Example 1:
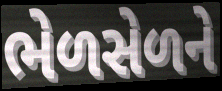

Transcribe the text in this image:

ભેળસેળને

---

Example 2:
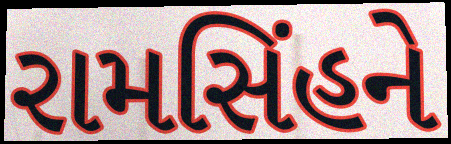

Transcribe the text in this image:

રામસિંહને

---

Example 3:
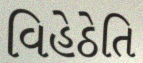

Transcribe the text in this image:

વિહેઠેતિ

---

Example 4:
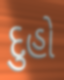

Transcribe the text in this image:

દુહો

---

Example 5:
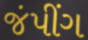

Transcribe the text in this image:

જંપીંગ